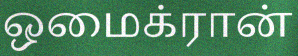
ஒமைக்ரான்